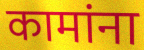
कामांना